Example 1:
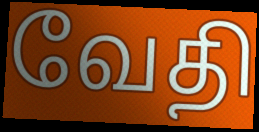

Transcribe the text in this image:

வேதி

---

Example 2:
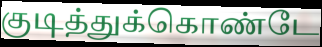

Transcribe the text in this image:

குடித்துக்கொண்டே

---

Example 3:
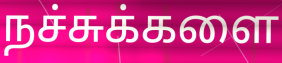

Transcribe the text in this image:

நச்சுக்களை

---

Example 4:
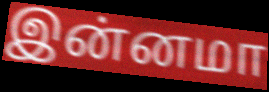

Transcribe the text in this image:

இன்னமா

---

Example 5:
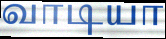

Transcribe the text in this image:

வாடியா